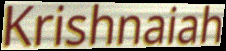
Krishnaiah